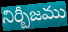
నిర్బీజము